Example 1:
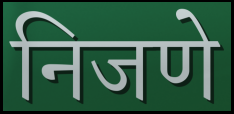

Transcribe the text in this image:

निजणे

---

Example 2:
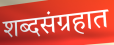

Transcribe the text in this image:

शब्दसंग्रहात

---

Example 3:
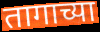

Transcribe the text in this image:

तागाच्या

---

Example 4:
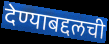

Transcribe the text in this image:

देण्याबद्दलची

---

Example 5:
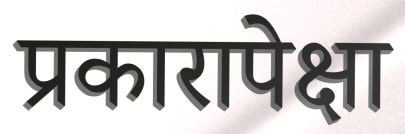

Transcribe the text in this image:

प्रकारापेक्षा